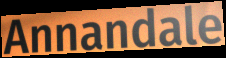
Annandale